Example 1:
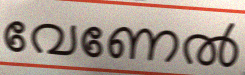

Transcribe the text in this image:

വേണേൽ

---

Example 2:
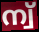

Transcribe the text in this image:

ന്വ്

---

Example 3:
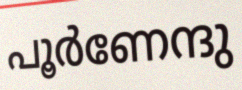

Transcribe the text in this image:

പൂർണേന്ദു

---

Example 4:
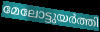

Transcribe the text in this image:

മേലോട്ടുയർത്തി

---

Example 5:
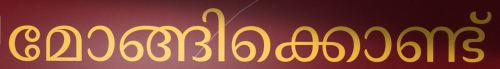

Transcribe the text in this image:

മോങ്ങിക്കൊണ്ട്